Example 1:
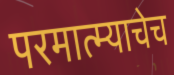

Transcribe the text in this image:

परमात्म्याचेच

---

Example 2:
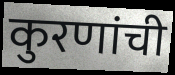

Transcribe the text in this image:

कुरणांची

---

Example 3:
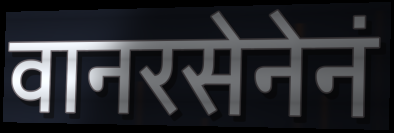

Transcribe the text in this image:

वानरसेनेनं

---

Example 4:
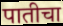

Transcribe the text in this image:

पातीचा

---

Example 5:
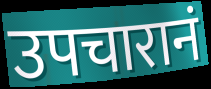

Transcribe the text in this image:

उपचारानं